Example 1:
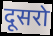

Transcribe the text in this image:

दूसरो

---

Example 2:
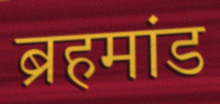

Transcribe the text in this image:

ब्रहमांड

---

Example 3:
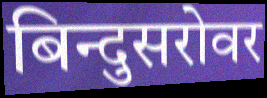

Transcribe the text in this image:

बिन्दुसरोवर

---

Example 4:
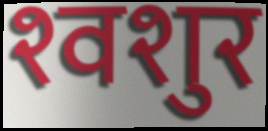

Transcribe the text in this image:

श्वशुर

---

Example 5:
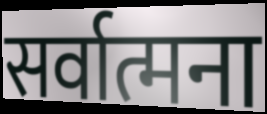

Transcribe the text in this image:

सर्वात्मना